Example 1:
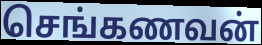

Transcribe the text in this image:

செங்கணவன்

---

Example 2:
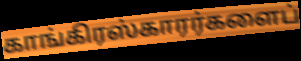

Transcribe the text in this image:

காங்கிரஸ்காரர்களைப்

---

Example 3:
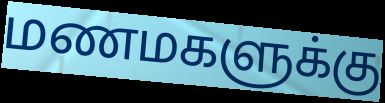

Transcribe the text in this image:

மணமகளுக்கு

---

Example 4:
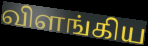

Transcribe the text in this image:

விளங்கிய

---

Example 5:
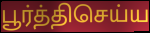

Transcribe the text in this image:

பூர்த்திசெய்ய